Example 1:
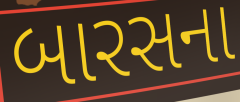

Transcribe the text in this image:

બારસના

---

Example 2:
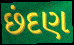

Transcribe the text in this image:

છંદણ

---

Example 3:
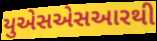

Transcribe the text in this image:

યુએસએસઆરથી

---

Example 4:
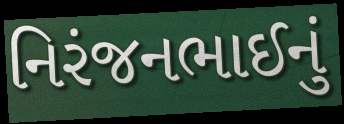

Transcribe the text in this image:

નિરંજનભાઈનું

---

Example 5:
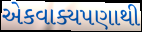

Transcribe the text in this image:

એકવાક્યપણાથી